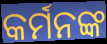
କର୍ମନଙ୍କ